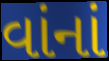
વાંનાં